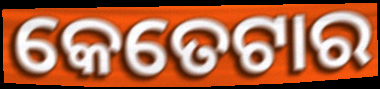
କେତେଟାର